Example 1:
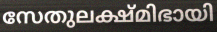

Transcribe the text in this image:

സേതുലക്ഷ്മിഭായി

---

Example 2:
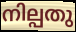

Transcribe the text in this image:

നില്പതു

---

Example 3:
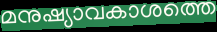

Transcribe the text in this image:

മനുഷ്യാവകാശത്തെ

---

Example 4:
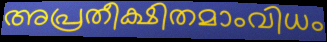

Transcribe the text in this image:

അപ്രതീക്ഷിതമാംവിധം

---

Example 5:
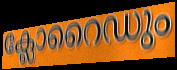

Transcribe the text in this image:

ക്ലോറൈഡും